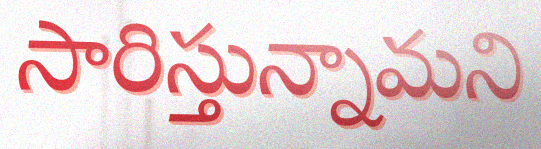
సారిస్తున్నామని